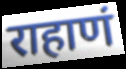
राहाणं